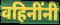
वहिनींनी